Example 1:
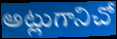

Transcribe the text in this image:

అట్లుగానిచో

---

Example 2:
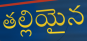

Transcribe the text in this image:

తల్లియైన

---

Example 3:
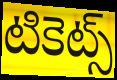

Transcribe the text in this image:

టికెట్స్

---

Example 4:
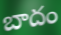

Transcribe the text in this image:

బాదం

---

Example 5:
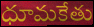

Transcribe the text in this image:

ధూమకేతు